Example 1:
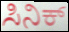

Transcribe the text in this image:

ಸಿನಿಕ್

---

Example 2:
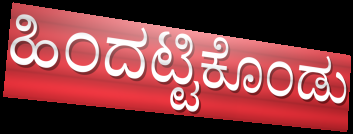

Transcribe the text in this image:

ಹಿಂದಟ್ಟಿಕೊಂಡು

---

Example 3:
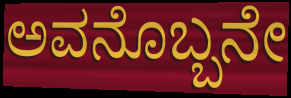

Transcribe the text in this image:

ಅವನೊಬ್ಬನೇ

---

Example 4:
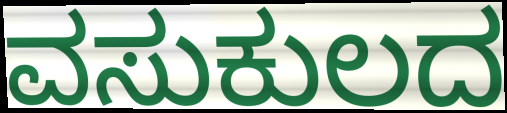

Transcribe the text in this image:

ವಸುಕುಲದ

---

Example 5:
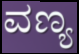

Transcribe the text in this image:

ವಣ್ಯ